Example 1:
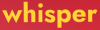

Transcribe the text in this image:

whisper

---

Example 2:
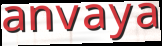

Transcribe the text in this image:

anvaya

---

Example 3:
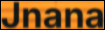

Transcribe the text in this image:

Jnana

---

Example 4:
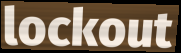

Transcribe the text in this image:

lockout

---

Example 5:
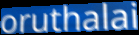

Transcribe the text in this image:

oruthalai